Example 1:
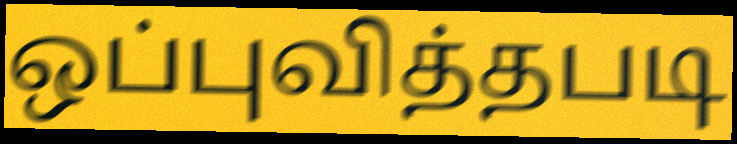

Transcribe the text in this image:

ஒப்புவித்தபடி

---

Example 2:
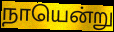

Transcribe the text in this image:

நாயென்று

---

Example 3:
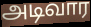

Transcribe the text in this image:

அடிவார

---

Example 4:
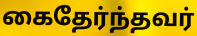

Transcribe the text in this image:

கைதேர்ந்தவர்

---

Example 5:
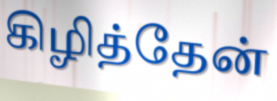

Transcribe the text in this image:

கிழித்தேன்